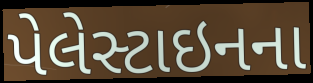
પેલેસ્ટાઇનના